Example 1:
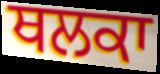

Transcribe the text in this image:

ਥਲਕਾ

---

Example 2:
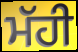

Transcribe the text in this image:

ਮੱਹੀ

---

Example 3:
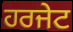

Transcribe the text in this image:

ਹਰਜੇਟ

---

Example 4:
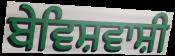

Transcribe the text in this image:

ਬੇਵਿਸ਼ਵਾਸ਼ੀ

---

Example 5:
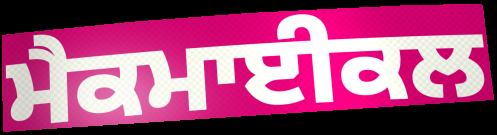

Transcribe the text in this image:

ਮੈਕਮਾਈਕਲ